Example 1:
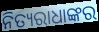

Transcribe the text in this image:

ନିତ୍ୟରାଧାଙ୍କର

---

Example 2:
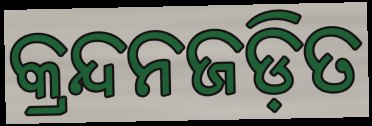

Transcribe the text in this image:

କ୍ରନ୍ଦନଜଡ଼ିତ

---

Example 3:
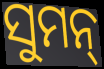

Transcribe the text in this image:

ସୁମନ୍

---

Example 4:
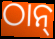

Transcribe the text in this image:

ଠାନ୍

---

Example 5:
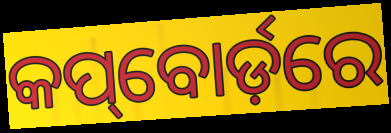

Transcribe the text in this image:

କପ୍‌ବୋର୍ଡ଼ରେ